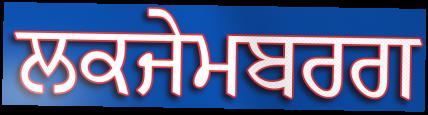
ਲਕਜੇਮਬਰਗ